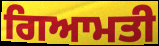
ਗਿਆਮਤੀ